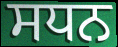
ਸਧਨ